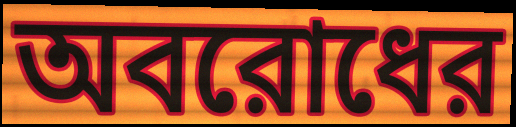
অবরোধের